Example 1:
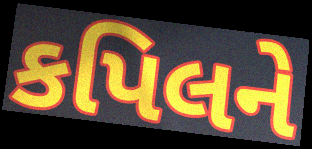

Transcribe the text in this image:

કપિલને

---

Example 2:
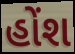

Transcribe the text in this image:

હોંશ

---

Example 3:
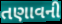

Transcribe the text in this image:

તણાવની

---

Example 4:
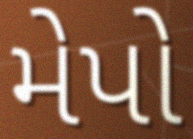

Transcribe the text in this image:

મેપો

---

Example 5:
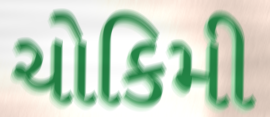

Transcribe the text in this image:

ચોકિમી